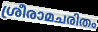
ശ്രീരാമചരിതം